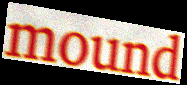
mound